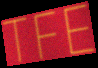
TFE